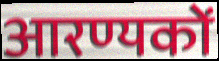
आरण्यकों